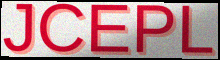
JCEPL